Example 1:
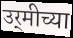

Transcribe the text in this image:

उर्मीच्या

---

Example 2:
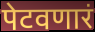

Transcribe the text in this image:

पेटवणारं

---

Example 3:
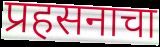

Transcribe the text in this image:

प्रहसनाचा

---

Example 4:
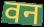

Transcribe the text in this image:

वन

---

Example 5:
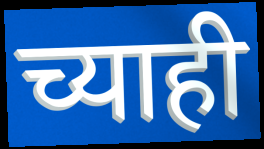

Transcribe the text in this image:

च्याही